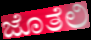
ಜೊತೆಲಿ